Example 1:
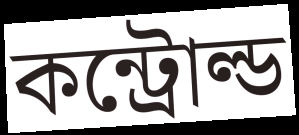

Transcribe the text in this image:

কন্ট্রোল্ড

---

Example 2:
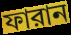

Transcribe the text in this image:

ফারান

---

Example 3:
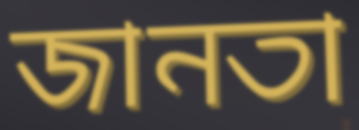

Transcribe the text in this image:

জানতা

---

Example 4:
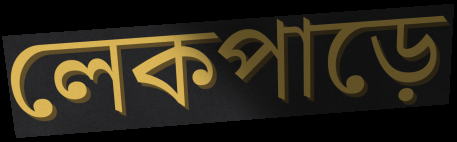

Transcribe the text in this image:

লেকপাড়ে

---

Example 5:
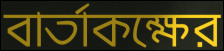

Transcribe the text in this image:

বার্তাকক্ষের